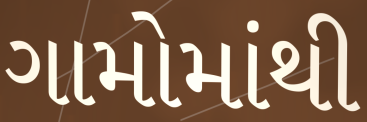
ગામોમાંથી